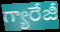
గ్యారేజీ